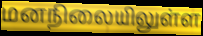
மனநிலையிலுள்ள